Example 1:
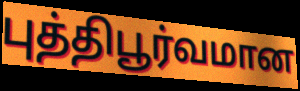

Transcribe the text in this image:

புத்திபூர்வமான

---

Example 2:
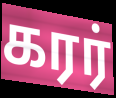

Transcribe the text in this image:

கரர்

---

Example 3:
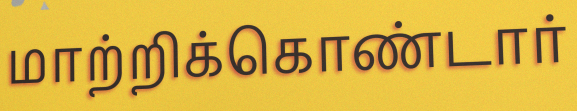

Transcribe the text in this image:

மாற்றிக்கொண்டார்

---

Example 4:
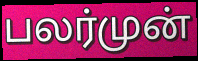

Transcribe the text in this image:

பலர்முன்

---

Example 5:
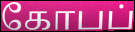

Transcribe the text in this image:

கோபப்